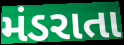
મંડરાતા